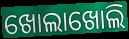
ଖୋଲାଖୋଲି